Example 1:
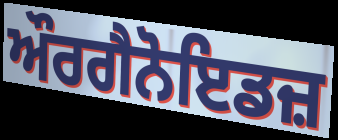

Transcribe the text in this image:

ਔਰਗੈਨੋਇਡਜ਼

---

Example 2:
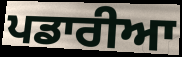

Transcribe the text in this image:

ਪਡਾਰੀਆ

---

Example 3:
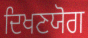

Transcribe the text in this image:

ਦਿਖਣਯੋਗ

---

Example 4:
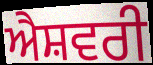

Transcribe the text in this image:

ਐਸ਼ਵਰੀ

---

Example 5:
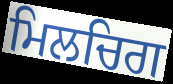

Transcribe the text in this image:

ਮਿਲਚਿਗ